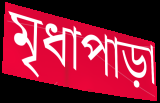
মৃধাপাড়া